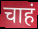
चाहं